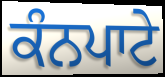
ਕੰਨਪਾਟੇ